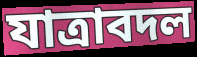
যাত্রাবদল